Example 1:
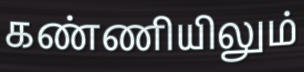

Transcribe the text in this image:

கண்ணியிலும்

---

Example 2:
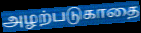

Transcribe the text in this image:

அழற்படுகாதை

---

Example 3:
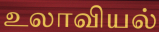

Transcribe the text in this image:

உலாவியல்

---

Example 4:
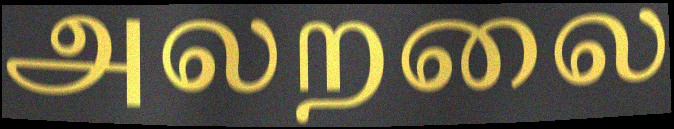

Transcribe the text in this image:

அலறலை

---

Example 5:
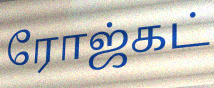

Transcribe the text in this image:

ரோஜ்கட்